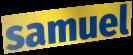
samuel